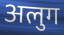
अलुग